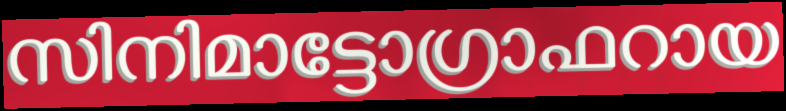
സിനിമാട്ടോഗ്രാഫറായ